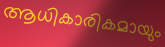
ആധികാരികമായും